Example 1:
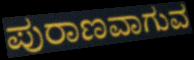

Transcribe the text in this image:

ಪುರಾಣವಾಗುವ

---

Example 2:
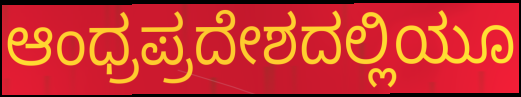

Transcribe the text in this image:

ಆಂಧ್ರಪ್ರದೇಶದಲ್ಲಿಯೂ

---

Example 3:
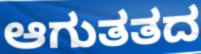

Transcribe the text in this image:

ಆಗುತತದ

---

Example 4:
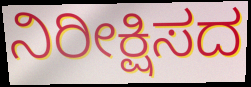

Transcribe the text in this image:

ನಿರೀಕ್ಷಿಸದ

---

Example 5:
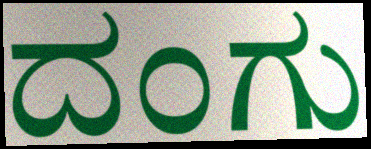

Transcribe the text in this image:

ದಂಗು